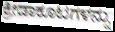
ಕ್ರೀಡಾಕೂಟಗಳನ್ನು